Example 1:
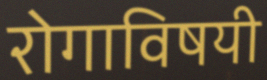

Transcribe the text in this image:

रोगाविषयी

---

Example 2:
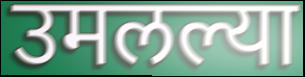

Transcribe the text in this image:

उमलल्या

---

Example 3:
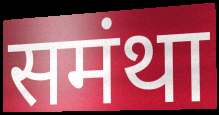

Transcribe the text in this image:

समंथा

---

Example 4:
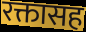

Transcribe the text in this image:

रक्तासह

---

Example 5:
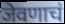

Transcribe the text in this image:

जेवणाचं